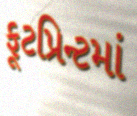
ફૂટપ્રિન્ટમાં